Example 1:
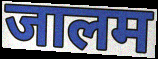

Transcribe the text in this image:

जालम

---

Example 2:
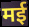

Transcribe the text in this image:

मई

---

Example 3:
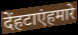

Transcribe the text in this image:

देंहटाएंहमारे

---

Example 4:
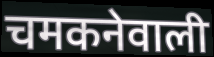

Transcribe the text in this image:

चमकनेवाली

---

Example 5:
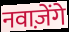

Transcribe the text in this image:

नवाज़ेंगे